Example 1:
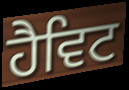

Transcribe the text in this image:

ਹੈਵਿਟ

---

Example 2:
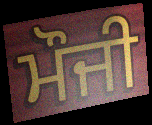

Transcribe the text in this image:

ਮੌਜੀ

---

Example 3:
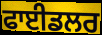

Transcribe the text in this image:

ਫਾਈਡਲਰ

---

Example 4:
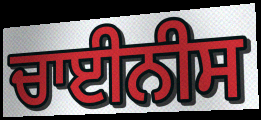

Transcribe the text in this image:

ਚਾਈਨੀਸ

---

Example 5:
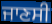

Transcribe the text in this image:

ਜਾਣਸੀ